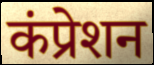
कंप्रेशन